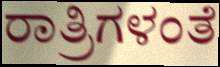
ರಾತ್ರಿಗಳಂತೆ